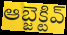
ఆబ్జెక్టివ్